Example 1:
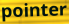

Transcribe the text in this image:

pointer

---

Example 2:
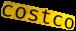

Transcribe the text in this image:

costco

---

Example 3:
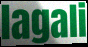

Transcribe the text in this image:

lagali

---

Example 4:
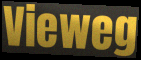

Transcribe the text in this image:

Vieweg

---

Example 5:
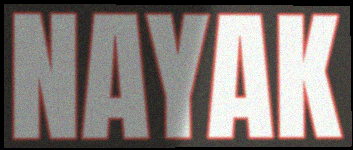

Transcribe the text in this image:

NAYAK